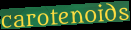
carotenoids